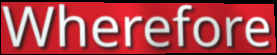
Wherefore